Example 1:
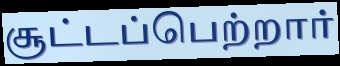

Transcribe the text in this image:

சூட்டப்பெற்றார்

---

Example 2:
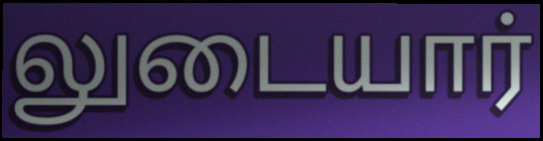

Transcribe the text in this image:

லுடையார்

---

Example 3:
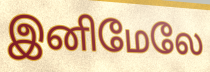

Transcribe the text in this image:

இனிமேலே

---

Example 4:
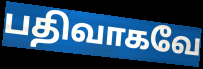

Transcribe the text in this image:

பதிவாகவே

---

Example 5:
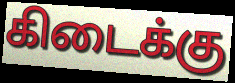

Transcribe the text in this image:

கிடைக்கு